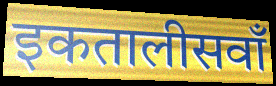
इकतालीसवाँ